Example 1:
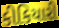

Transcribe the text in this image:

કીકિયારી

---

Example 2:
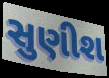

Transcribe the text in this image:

સુણીશ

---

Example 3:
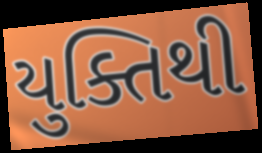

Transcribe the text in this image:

યુક્તિથી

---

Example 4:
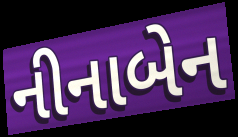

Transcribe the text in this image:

નીનાબેન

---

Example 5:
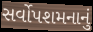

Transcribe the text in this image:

સર્વોપશમનાનું